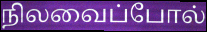
நிலவைப்போல்